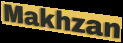
Makhzan